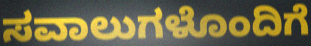
ಸವಾಲುಗಳೊಂದಿಗೆ